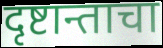
दृष्टान्ताचा